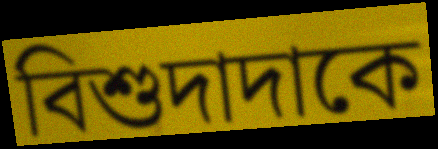
বিশুদাদাকে